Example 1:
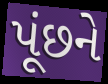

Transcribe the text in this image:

પૂંછને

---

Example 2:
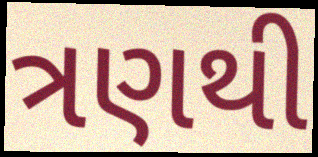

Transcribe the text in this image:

ત્રણથી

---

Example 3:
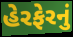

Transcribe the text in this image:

હેરફેરનું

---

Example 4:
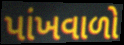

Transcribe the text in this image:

પાંખવાળો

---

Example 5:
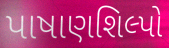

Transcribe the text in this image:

પાષાણશિલ્પો